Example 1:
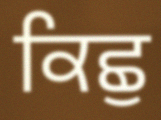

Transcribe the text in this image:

ਕਿਛੁ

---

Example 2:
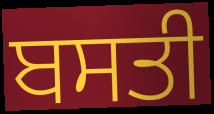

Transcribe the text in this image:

ਬਸਤੀ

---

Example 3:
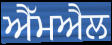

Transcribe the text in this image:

ਐੱਮਐਲ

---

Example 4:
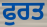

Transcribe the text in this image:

ਫੁਰਤ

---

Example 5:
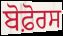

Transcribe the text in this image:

ਬੋਫ਼ੋਰਸ